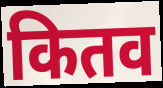
कितव